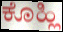
ಕೊಹ್ಲಿ